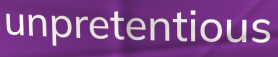
unpretentious